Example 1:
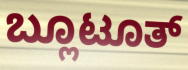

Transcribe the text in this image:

ಬ್ಲೂಟೂತ್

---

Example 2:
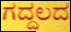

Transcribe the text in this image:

ಗದ್ದಲದ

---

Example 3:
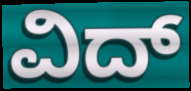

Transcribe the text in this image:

ವಿದ್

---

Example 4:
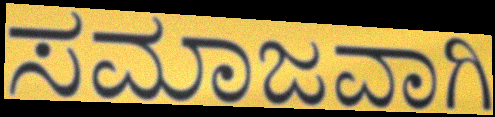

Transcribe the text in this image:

ಸಮಾಜವಾಗಿ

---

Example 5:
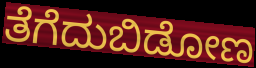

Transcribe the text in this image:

ತೆಗೆದುಬಿಡೋಣ